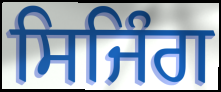
ਸਿਜਿੰਗ